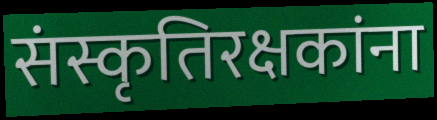
संस्कृतिरक्षकांना